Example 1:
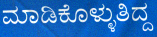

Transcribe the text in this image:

ಮಾಡಿಕೊಳ್ಳುತಿದ್ದ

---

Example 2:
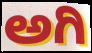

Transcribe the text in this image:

ಅಗಿ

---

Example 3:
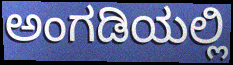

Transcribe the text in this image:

ಅಂಗಡಿಯಲ್ಲಿ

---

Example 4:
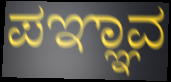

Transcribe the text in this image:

ಪಞ್ಞಾವ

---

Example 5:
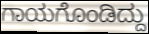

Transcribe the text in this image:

ಗಾಯಗೊಂಡಿದ್ದು